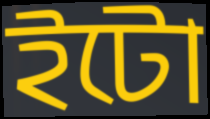
ইটো